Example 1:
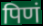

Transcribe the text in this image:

पिणं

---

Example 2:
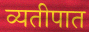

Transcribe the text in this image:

व्यतीपात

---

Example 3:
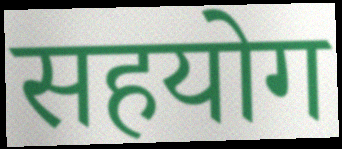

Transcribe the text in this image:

सहयोग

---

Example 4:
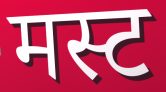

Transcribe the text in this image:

मस्ट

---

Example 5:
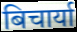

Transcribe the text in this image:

बिचार्या